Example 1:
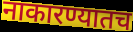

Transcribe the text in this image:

नाकारण्यातच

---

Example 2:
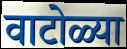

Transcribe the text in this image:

वाटोळ्या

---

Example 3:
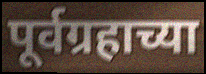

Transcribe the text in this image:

पूर्वग्रहाच्या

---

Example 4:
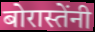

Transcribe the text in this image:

बोरास्तेंनी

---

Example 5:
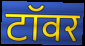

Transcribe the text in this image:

टॉवर